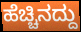
ಹೆಚ್ಚಿನದ್ದು